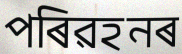
পৰিৱহনৰ